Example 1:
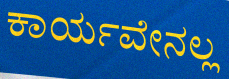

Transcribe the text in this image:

ಕಾರ್ಯವೇನಲ್ಲ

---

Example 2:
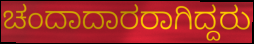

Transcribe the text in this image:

ಚಂದಾದಾರರಾಗಿದ್ದರು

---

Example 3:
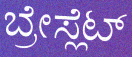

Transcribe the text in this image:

ಬ್ರೇಸ್ಲೆಟ್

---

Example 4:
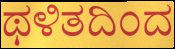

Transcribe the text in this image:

ಥಳಿತದಿಂದ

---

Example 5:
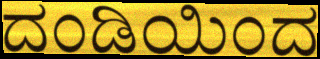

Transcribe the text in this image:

ದಂಡಿಯಿಂದ